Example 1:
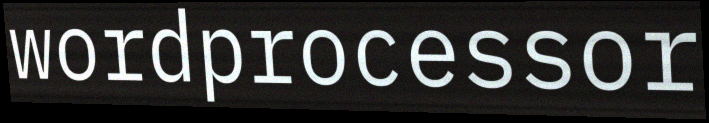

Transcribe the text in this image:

wordprocessor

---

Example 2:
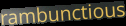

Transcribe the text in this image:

rambunctious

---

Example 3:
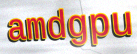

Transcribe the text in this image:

amdgpu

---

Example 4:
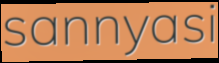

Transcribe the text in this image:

sannyasi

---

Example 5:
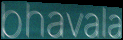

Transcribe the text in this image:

bhavala